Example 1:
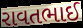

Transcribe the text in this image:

રાવતભાઈ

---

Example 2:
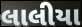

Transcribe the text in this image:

લાલીયા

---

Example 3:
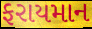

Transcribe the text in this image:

ફરાયમાન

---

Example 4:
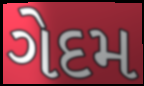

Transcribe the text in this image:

ગેદમ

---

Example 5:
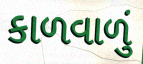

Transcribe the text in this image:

કાળવાળું